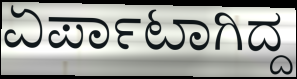
ಏರ್ಪಾಟಾಗಿದ್ದ